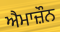
ਐਮਾਜ਼ੌਨ